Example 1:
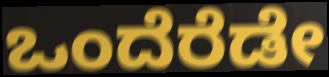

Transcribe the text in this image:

ಒಂದೆರೆಡೇ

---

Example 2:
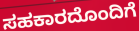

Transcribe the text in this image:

ಸಹಕಾರದೊಂದಿಗೆ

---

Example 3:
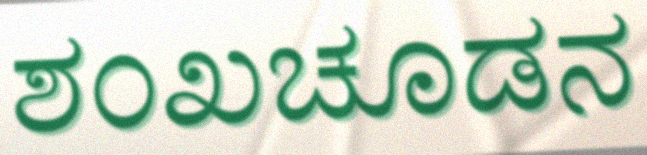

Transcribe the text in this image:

ಶಂಖಚೂಡನ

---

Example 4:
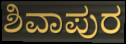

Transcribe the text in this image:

ಶಿವಾಪುರ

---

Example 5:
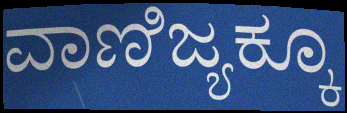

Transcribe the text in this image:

ವಾಣಿಜ್ಯಕ್ಕೂ